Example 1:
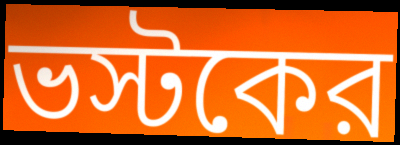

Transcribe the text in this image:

ভস্টকের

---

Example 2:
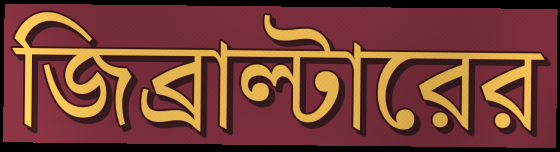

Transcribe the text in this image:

জিব্রাল্টারের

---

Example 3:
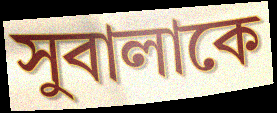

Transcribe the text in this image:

সুবালাকে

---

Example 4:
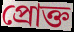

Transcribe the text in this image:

প্রোক্ত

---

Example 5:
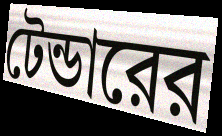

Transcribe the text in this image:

টেন্ডারের